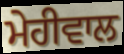
ਮੇਹੀਵਾਲ